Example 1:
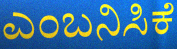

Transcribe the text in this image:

ಎಂಬನಿಸಿಕೆ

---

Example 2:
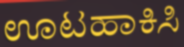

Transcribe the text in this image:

ಊಟಹಾಕಿಸಿ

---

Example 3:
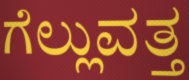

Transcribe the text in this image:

ಗೆಲ್ಲುವತ್ತ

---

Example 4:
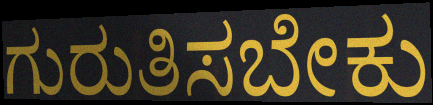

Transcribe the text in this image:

ಗುರುತಿಸಬೇಕು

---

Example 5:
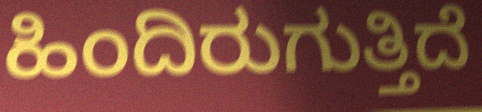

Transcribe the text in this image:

ಹಿಂದಿರುಗುತ್ತಿದೆ